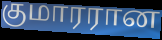
குமாரரான